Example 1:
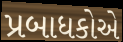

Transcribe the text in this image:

પ્રબાધકોએ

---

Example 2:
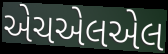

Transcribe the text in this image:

એચએલએલ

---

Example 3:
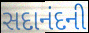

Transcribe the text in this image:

સદાનંદની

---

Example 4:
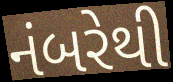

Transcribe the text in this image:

નંબરેથી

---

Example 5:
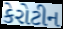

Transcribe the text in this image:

કેરોટીન